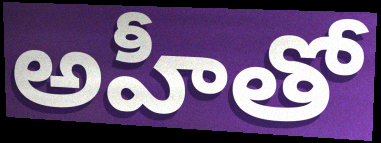
అహీతో